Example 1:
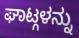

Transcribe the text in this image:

ಘಾಟ್ಗಳನ್ನು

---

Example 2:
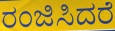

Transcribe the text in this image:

ರಂಜಿಸಿದರೆ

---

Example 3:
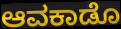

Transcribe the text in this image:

ಆವಕಾಡೊ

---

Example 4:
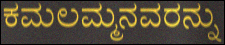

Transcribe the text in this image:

ಕಮಲಮ್ಮನವರನ್ನು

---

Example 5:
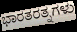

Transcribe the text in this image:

ಭಾರತರತ್ನಗಳು